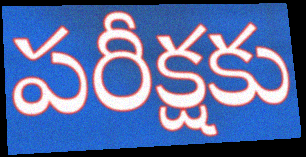
పరీక్షకు